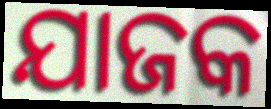
ଯାଜକ